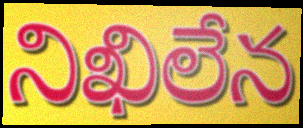
నిఖిలేన